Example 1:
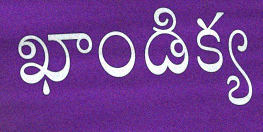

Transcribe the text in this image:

ఖాండిక్య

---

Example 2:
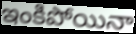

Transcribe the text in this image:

ఇంకిపోయినా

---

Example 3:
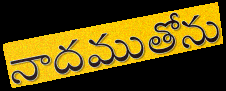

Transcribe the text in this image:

నాదముతోను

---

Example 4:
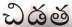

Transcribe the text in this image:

చిడత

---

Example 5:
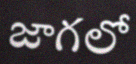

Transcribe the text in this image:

జాగలో